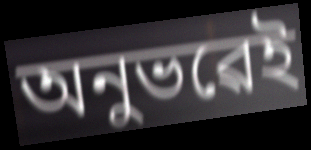
অনুভৱেই